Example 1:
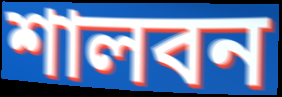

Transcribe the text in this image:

শালবন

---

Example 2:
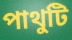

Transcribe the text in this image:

পাথুটি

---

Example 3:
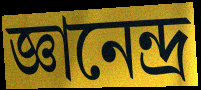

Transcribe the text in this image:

জ্ঞানেন্দ্র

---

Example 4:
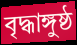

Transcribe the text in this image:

বৃদ্ধাঙ্গুষ্ঠ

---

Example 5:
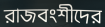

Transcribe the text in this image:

রাজবংশীদের